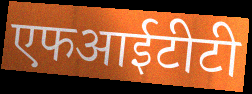
एफआईटीटी